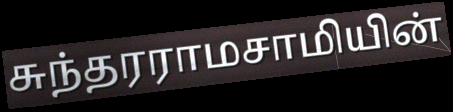
சுந்தரராமசாமியின்